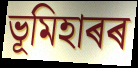
ভূমিহাৰৰ